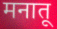
मनातू